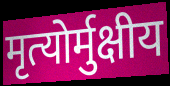
मृत्‍योर्मुक्षीय